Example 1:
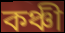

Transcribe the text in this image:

কঞ্চী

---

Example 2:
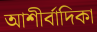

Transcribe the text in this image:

আশীর্বাদিকা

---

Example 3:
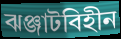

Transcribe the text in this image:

ঝঞ্জাটবিহীন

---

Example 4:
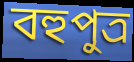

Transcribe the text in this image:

বহুপুত্র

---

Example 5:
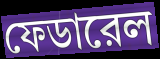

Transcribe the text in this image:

ফেডারেল